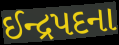
ઈન્દ્રપદના